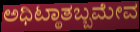
ಅಧಿಟ್ಠಾತಬ್ಬಮೇವ